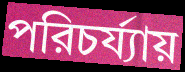
পরিচর্য্যায়